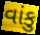
વાંકુ